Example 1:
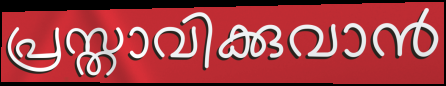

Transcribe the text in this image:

പ്രസ്താവിക്കുവാൻ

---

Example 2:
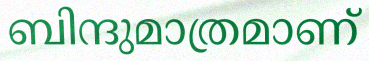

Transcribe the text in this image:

ബിന്ദുമാത്രമാണ്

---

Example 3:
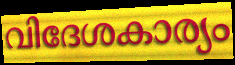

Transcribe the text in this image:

വിദേശകാര്യം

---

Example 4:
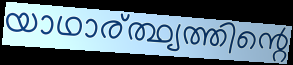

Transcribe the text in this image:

യാഥാര്ത്ഥ്യത്തിന്റെ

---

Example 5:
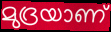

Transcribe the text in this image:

മുദ്രയാണ്